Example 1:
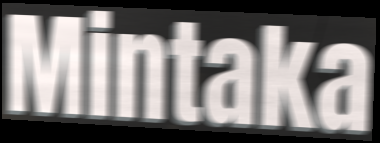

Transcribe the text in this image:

Mintaka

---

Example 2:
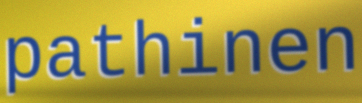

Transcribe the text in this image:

pathinen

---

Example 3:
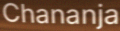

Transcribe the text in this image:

Chananja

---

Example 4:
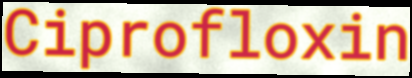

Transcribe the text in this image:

Ciprofloxin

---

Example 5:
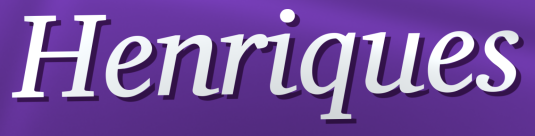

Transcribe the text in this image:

Henriques